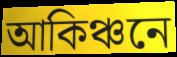
আকিঞ্চনে